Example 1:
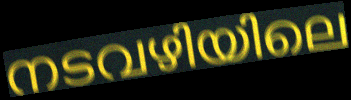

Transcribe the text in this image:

നടവഴിയിലെ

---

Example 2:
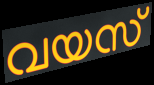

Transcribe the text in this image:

വയസ്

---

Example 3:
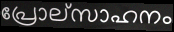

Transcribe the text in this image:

പ്രോല്സാഹനം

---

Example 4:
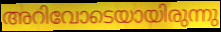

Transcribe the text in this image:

അറിവോടെയായിരുന്നു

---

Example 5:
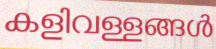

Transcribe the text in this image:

കളിവള്ളങ്ങൾ